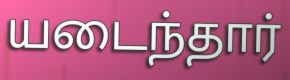
யடைந்தார்